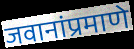
जवानांप्रमाणे